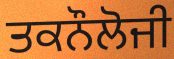
ਤਕਨੌਲੋਜੀ